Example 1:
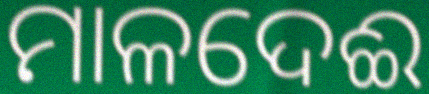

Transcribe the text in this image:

ମାଳଦେଈ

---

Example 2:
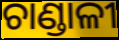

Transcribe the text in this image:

ଚାଣ୍ଡାଳୀ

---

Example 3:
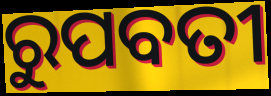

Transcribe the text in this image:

ରୁପବତୀ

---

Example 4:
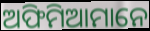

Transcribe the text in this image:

ଅଫିମିଆମାନେ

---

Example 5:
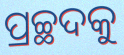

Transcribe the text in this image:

ପ୍ରଚ୍ଛଦକୁ